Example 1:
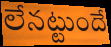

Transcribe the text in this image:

లేనట్టుందే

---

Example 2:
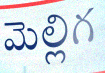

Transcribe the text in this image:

మెల్లిగ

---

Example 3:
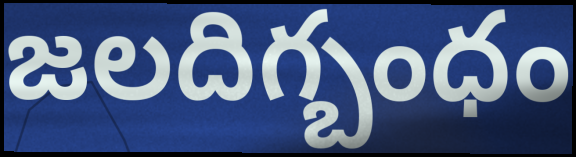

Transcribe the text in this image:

జలదిగ్బంధం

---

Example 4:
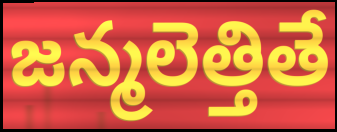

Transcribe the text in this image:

జన్మలెత్తితే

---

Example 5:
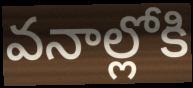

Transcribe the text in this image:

వనాల్లోకి